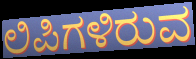
ಲಿಪಿಗಳಿರುವ